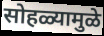
सोहळ्यामुळे